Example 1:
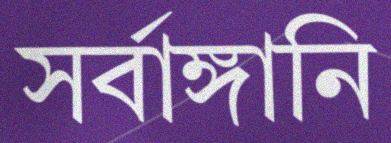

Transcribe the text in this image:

সর্বাঙ্গানি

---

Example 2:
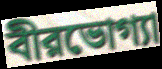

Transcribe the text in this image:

বীরভোগ্যা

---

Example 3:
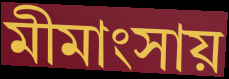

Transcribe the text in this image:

মীমাংসায়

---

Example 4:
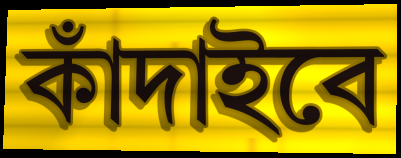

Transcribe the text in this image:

কাঁদাইবে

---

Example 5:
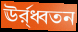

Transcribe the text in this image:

ঊর্র্ধ্বতন